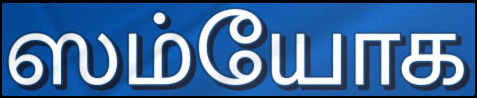
ஸம்யோக